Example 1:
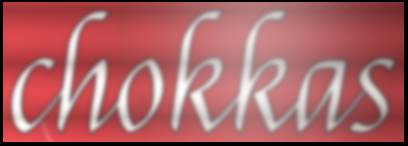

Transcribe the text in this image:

chokkas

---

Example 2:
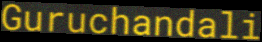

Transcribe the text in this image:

Guruchandali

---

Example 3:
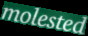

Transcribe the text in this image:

molested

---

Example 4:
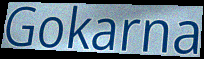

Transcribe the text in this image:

Gokarna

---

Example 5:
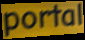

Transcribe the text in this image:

portal